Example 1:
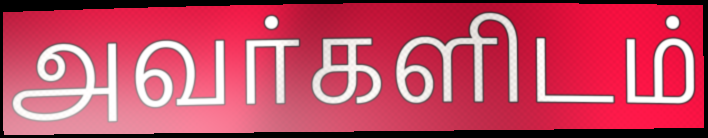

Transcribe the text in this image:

அவர்களிடம்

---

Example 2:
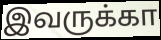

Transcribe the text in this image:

இவருக்கா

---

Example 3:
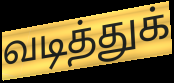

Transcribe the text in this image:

வடித்துக்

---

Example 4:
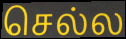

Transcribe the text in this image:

செல்ல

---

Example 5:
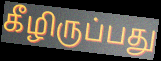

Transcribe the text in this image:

கீழிருப்பது